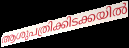
ആശുപത്രിക്കിടക്കയിൽ